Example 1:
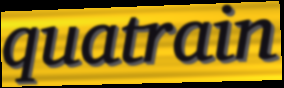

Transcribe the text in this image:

quatrain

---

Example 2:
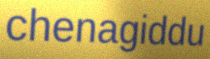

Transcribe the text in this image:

chenagiddu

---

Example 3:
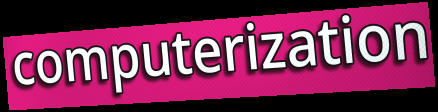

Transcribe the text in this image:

computerization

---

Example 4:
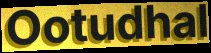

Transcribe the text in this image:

Ootudhal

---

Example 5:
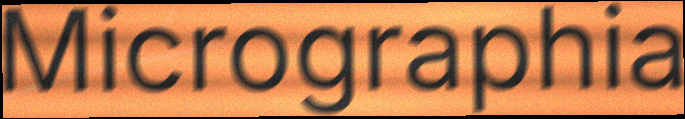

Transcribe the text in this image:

Micrographia